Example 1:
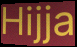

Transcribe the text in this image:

Hijja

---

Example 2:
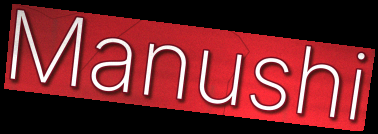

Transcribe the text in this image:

Manushi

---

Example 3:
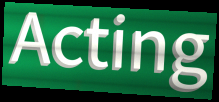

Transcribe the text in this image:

Acting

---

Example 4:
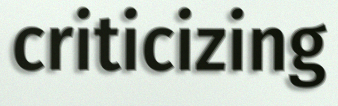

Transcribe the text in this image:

criticizing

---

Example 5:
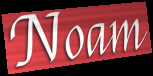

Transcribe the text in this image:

Noam